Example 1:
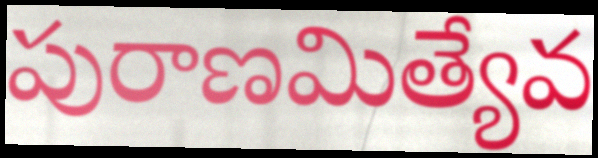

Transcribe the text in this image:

పురాణమిత్యేవ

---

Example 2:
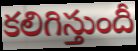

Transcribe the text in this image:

కలిగిస్తుందీ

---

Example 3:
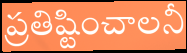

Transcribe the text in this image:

ప్రతిష్టించాలనీ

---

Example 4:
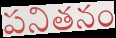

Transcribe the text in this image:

పనితనం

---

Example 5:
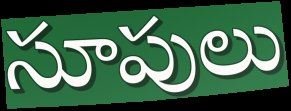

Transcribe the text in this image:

సూపులు